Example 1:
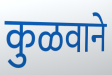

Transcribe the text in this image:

कुळवाने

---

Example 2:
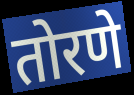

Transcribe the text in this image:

तोरणे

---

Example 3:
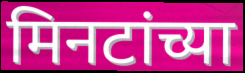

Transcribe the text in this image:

मिनटांच्या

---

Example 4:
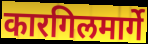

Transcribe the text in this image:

कारगिलमार्गे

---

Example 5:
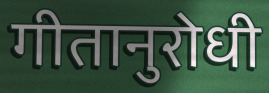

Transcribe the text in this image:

गीतानुरोधी